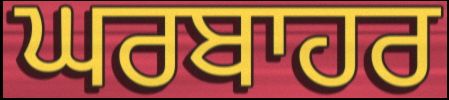
ਘਰਬਾਹਰ